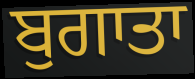
ਬੁਗਾਤਾ